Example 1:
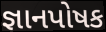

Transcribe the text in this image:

જ્ઞાનપોષક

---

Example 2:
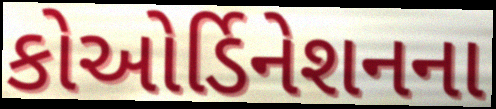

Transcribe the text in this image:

કોઓર્ડિનેશનના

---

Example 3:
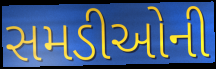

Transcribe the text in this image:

સમડીઓની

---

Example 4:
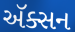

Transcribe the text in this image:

ઍક્સન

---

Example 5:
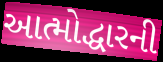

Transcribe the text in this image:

આત્મોદ્ધારની